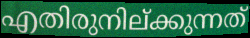
എതിരുനില്ക്കുന്നത്